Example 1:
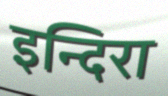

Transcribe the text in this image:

इन्दिरा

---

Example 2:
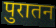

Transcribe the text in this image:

पुरातन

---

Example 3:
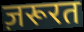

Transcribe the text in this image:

ज़रूरत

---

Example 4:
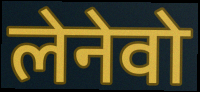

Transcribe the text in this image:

लेनेवो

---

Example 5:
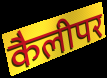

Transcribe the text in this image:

कैलीपर